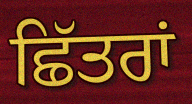
ਛਿੱਤਰਾਂ